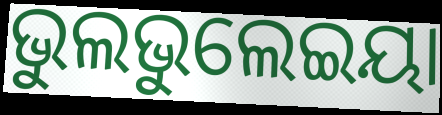
ଭୁଲଭୁଲେଇୟା